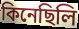
কিনেছিলি